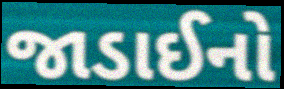
જાડાઈનો